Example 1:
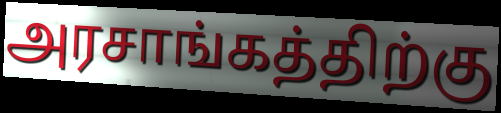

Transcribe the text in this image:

அரசாங்கத்திற்கு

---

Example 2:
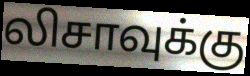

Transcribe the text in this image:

லிசாவுக்கு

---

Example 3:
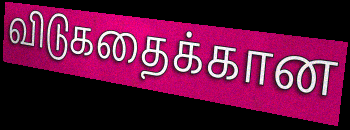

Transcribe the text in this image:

விடுகதைக்கான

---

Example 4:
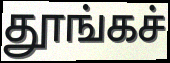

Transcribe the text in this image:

தூங்கச்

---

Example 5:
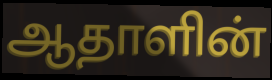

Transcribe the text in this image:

ஆதாளின்